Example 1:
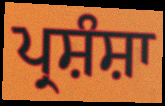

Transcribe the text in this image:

ਪ੍ਰਸ਼ੰਸ਼ਾ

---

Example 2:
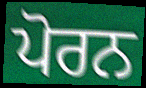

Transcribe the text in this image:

ਪੋਰਨ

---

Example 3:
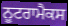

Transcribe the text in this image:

ਨੂਟਰਾਮੈਕਸ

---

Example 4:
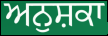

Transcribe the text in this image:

ਅਨੁਸ਼ਕਾ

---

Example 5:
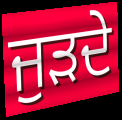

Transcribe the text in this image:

ਜੁੜਦੇ